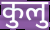
कुलु